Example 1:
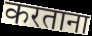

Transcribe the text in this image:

करताना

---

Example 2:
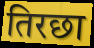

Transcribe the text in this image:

तिरछा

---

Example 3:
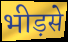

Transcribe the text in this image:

भीड़से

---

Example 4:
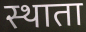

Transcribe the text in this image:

स्थाता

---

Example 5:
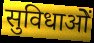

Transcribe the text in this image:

सुविधाओें